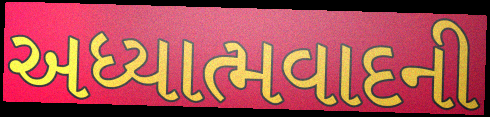
અધ્યાત્મવાદની